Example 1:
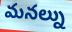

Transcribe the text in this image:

మనల్ను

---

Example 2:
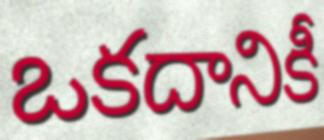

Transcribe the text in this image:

ఒకదానికీ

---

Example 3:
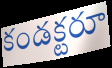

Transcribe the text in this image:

కండక్టరూ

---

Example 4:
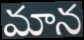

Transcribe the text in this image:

మాన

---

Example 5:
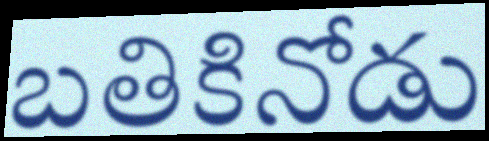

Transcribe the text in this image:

బతికినోడు